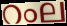
റംല